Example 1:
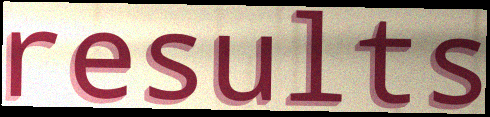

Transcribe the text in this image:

results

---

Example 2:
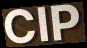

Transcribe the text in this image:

CIP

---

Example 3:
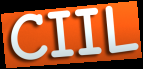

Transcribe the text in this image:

CIIL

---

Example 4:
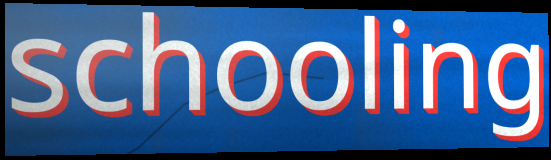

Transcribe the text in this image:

schooling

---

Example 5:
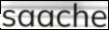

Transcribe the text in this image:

saache